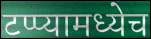
टप्प्यामध्येच